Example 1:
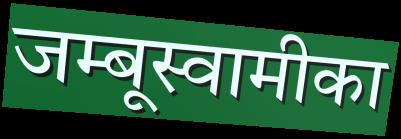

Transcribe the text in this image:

जम्बूस्वामीका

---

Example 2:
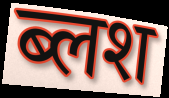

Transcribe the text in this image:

ब्लश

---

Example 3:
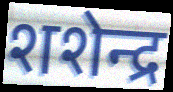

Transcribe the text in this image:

शशेन्द्र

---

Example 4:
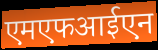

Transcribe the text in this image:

एमएफआईएन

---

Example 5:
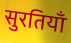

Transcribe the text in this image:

सुरतियाँ